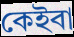
কেইবা